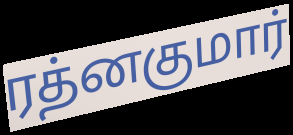
ரத்னகுமார்